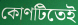
কোণটিতেই